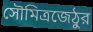
সৌমিত্রজেঠুর